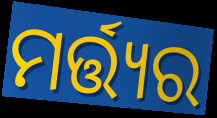
ମର୍ତ୍ତ୍ୟର